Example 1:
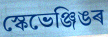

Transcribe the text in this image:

স্কেভেঞ্জিঙৰ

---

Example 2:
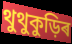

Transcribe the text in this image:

থুথুকুড়িৰ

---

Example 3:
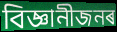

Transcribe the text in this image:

বিজ্ঞানীজনৰ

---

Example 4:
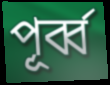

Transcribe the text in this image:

পূৰ্ব্ব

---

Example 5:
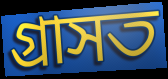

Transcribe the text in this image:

গ্ৰাসত